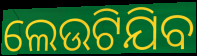
ଲେଉଟିଯିବ